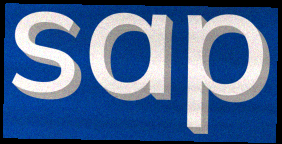
sap